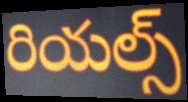
రియల్స్